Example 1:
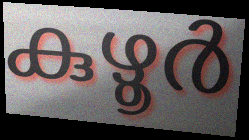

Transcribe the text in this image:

കുഴൂർ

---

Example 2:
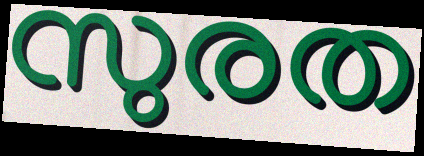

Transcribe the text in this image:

സുരത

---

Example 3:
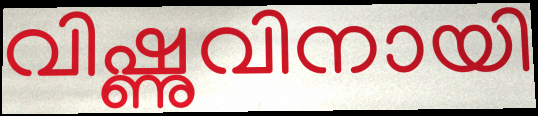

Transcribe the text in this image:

വിഷ്ണുവിനായി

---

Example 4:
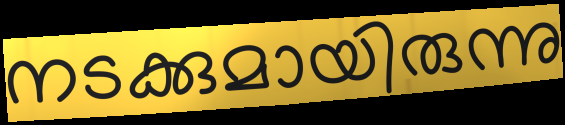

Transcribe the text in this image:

നടക്കുമായിരുന്നു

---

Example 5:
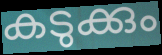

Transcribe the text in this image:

കടുക്കും